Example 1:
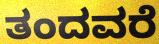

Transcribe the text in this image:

ತಂದವರೆ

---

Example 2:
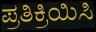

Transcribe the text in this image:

ಪ್ರತಿಕ್ರಿಯಿಸಿ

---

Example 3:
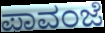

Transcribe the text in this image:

ಪಾವಂಜೆ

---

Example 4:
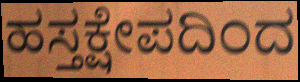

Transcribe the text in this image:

ಹಸ್ತಕ್ಷೇಪದಿಂದ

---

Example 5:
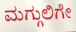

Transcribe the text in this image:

ಮಗ್ಗುಲಿಗೇ